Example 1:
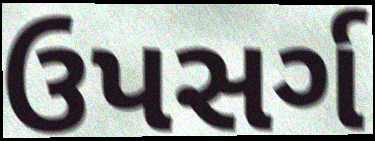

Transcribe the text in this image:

ઉપસર્ગ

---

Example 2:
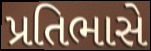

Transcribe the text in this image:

પ્રતિભાસે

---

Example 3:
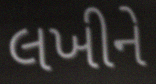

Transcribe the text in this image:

લખીને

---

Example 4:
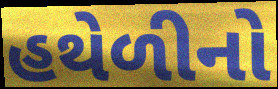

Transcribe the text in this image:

હથેળીનો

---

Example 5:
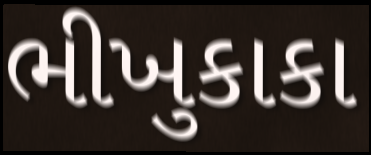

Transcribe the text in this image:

ભીખુકાકા